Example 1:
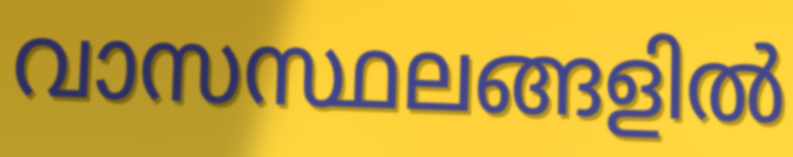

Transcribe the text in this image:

വാസസ്ഥലങ്ങളിൽ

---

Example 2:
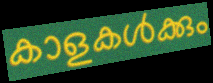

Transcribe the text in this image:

കാളകൾക്കും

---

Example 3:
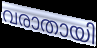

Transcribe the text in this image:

വരാതായി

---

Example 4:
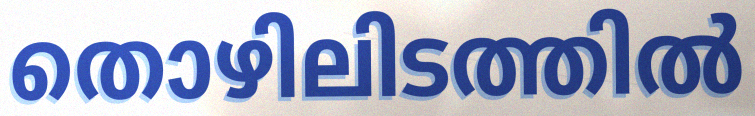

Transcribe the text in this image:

തൊഴിലിടത്തിൽ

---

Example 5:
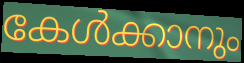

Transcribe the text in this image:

കേൾക്കാനും